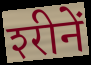
श्रीनें